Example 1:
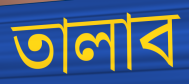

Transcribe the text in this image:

তালাব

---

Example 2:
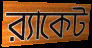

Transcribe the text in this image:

র‍্যাকেট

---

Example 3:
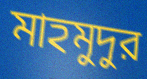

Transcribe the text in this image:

মাহমুদুর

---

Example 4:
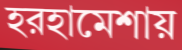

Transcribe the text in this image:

হরহামেশায়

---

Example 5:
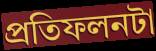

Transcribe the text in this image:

প্রতিফলনটা